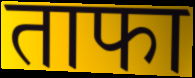
ताफा